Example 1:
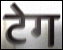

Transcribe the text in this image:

टेग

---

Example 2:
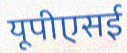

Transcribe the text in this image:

यूपीएसई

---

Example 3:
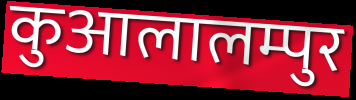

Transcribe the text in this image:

कुआलालम्पुर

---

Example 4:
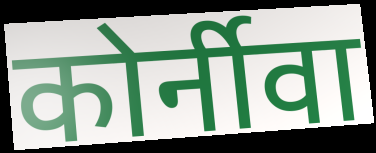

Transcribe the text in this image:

कोर्नीवा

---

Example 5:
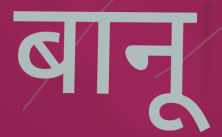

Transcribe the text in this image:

बानू